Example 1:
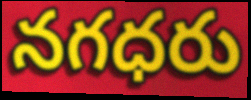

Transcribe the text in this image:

నగధరు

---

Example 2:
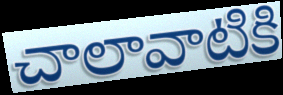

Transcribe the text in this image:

చాలావాటికి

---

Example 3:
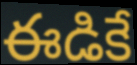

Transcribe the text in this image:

ఈడికే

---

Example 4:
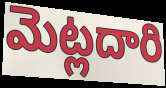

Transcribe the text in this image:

మెట్లదారి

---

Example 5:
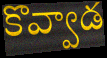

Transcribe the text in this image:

కొవ్వాడ